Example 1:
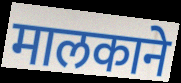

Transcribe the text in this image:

मालकाने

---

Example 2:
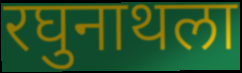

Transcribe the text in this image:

रघुनाथला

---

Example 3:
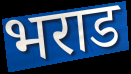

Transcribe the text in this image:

भराड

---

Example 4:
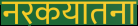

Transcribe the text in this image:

नरकयातना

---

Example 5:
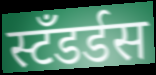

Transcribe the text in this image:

स्टँडर्डस